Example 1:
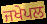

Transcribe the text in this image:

ਜਖੇਪਲ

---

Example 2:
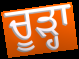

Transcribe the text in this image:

ਚੂੜ੍ਹਾ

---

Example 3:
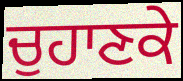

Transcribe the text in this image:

ਚੁਹਾਣਕੇ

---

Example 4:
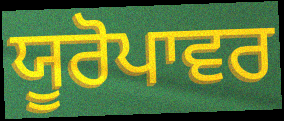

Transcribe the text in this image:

ਯੂਰੋਪਾਵਰ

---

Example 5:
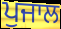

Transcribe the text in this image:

ਪੁਜਾਲ